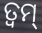
ତ୍ୱମ୍